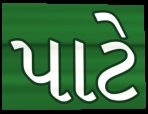
પાટે